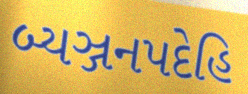
બ્યઞ્જનપદેહિ